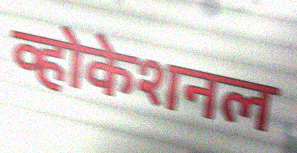
व्होकेशनल